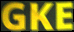
GKE